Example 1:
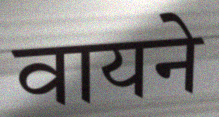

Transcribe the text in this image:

वायने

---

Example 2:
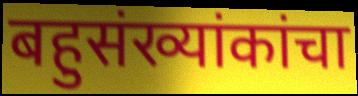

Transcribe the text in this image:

बहुसंख्यांकांचा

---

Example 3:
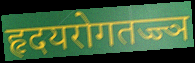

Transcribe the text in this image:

हृदयरोगतज्ज्ञ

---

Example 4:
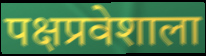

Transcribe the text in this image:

पक्षप्रवेशाला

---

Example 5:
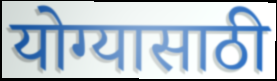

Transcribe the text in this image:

योग्यासाठी